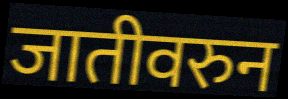
जातीवरुन